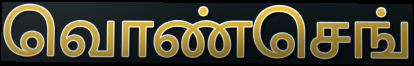
வொண்செங்